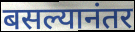
बसल्यानंतर